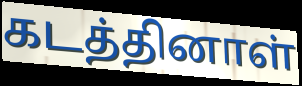
கடத்தினாள்